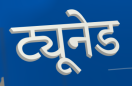
ट्यूनेड